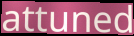
attuned